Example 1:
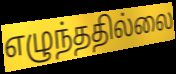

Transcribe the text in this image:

எழுந்ததில்லை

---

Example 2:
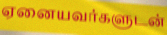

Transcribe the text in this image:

ஏனையவர்களுடன்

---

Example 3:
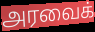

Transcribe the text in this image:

அரவைக்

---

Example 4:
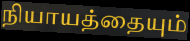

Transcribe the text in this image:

நியாயத்தையும்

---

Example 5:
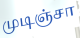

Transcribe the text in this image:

முடிஞ்சா